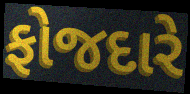
ફોજદારે